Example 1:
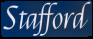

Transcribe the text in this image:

Stafford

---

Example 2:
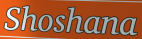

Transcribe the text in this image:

Shoshana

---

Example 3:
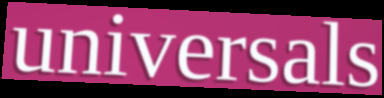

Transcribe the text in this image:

universals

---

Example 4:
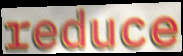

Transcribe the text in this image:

reduce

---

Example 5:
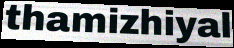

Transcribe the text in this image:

thamizhiyal